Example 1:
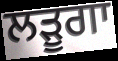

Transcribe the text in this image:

ਲੜੂਗਾ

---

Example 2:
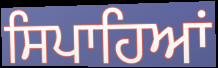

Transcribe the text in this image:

ਸਿਪਾਹਿਆਂ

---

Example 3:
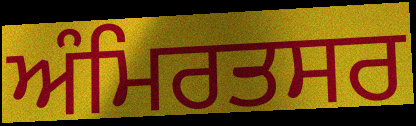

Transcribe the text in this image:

ਅੰਮਿਰਤਸਰ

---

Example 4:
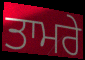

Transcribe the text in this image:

ਤਾਮਰੇ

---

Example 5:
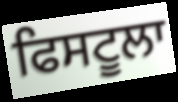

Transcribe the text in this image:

ਫਿਸਟੂਲਾ